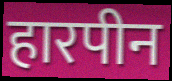
हारपीन